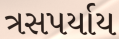
ત્રસપર્યાય